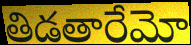
తిడతారేమో